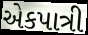
એકપાત્રી